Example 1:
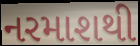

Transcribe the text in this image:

નરમાશથી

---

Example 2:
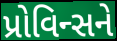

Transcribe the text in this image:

પ્રોવિન્સને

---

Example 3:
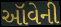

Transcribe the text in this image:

ઑવેની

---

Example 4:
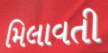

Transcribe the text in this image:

મિલાવતી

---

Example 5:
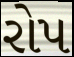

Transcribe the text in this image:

રોપ